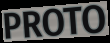
PROTO